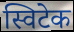
स्विटेक